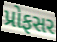
પ્રોફસર